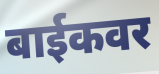
बाईकवर